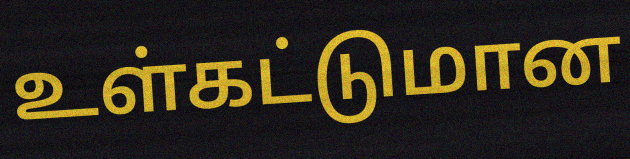
உள்கட்டுமான